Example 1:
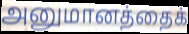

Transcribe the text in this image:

அனுமானத்தைக்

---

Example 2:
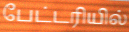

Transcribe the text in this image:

பேட்டரியில்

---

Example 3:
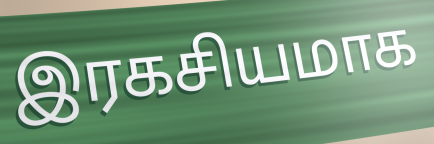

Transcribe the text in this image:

இரகசியமாக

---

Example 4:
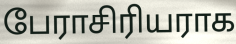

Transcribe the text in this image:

பேராசிரியராக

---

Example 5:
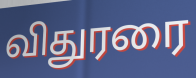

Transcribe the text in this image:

விதுரரை